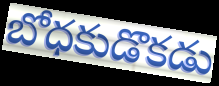
బోధకుడొకడు